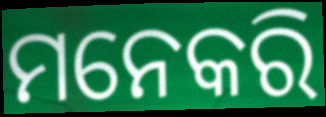
ମନେକରି